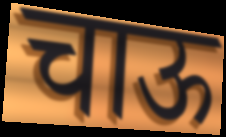
चाऊ